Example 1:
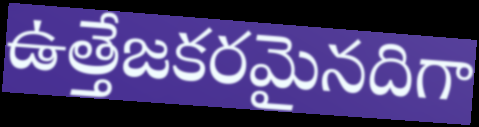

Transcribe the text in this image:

ఉత్తేజకరమైనదిగా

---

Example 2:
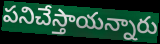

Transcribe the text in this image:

పనిచేస్తాయన్నారు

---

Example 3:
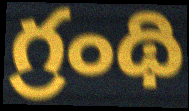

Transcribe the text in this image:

గ్రంథి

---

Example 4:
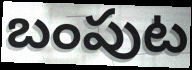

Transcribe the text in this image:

బంపుట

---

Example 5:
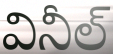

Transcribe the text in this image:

వినీల్